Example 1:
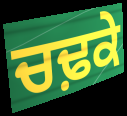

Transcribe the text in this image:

ਚਢ਼ਕੇ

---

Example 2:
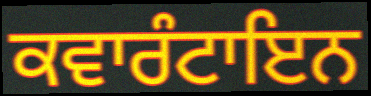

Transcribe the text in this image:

ਕਵਾਰੰਟਾਇਨ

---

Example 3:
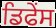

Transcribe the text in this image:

ਡਿਫੇਂਸ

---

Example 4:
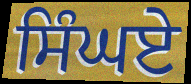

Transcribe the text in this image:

ਸਿੰਘਏ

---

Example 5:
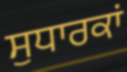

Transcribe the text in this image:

ਸੁਧਾਰਕਾਂ